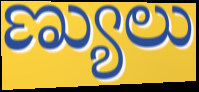
ణ్యులు